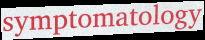
symptomatology